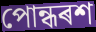
পোন্ধৰশ